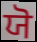
ਯੋ